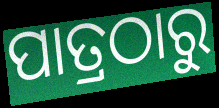
ପାତ୍ରଠାରୁ